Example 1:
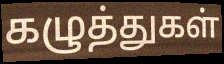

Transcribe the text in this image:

கழுத்துகள்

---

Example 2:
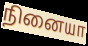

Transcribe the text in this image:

நினையா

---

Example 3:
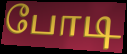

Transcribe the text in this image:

போடி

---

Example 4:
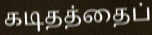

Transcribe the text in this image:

கடிதத்தைப்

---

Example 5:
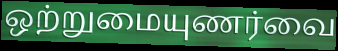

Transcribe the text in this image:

ஒற்றுமையுணர்வை